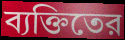
ব্যক্তিতের